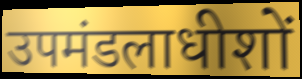
उपमंडलाधीशों